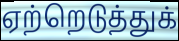
ஏற்றெடுத்துக்